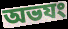
অভযং